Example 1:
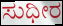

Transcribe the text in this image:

ಸುಧೀರ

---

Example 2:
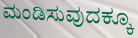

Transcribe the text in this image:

ಮಂಡಿಸುವುದಕ್ಕೂ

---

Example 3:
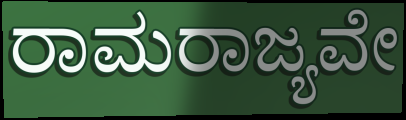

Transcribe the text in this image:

ರಾಮರಾಜ್ಯವೇ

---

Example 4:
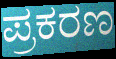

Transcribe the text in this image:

ಪ್ರಕರಣ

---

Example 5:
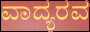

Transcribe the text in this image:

ವಾದ್ಯರವ